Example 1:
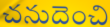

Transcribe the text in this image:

చనుదెంచి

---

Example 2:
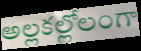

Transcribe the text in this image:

అల్లకల్లోలంగా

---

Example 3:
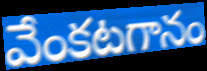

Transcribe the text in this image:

వేంకటగానం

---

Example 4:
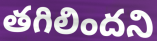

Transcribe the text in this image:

తగిలిందని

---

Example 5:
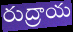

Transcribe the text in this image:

రుద్రాయ